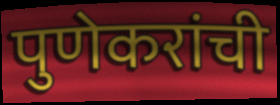
पुणेकरांची